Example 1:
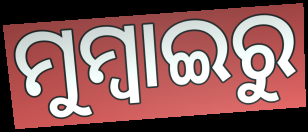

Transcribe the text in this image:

ମୁମ୍ବାଇରୁ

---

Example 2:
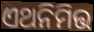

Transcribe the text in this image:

ଏଥନିମିତ୍ତ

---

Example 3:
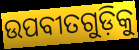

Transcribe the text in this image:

ଉପବୀତଗୁଡ଼ିକୁ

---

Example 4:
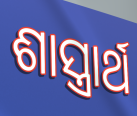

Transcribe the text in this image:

ଶାସ୍ତ୍ରାର୍ଥ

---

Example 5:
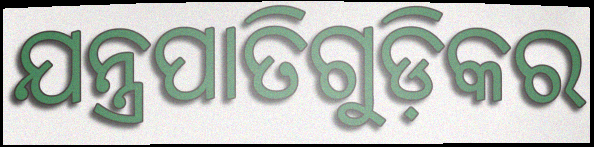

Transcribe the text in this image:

ଯନ୍ତ୍ରପାତିଗୁଡ଼ିକର